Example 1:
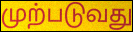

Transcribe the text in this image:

முற்படுவது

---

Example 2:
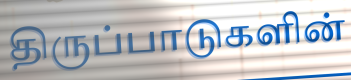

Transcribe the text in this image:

திருப்பாடுகளின்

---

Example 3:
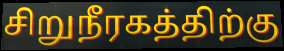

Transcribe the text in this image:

சிறுநீரகத்திற்கு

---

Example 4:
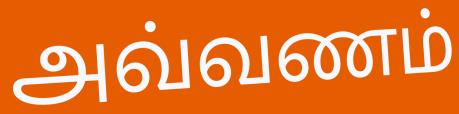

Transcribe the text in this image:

அவ்வணம்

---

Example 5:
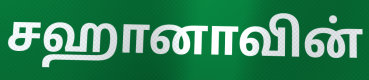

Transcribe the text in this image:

சஹானாவின்